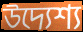
উদ্যেশ্য